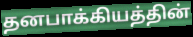
தனபாக்கியத்தின்